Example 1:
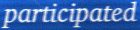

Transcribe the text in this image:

participated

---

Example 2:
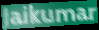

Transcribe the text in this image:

Jaikumar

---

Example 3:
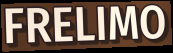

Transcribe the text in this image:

FRELIMO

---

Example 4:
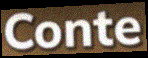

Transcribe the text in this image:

Conte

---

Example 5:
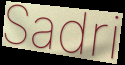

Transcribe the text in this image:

Sadri